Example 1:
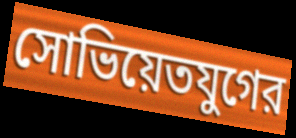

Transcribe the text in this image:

সোভিয়েতযুগের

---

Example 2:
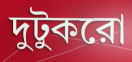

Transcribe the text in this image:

দুটুকরো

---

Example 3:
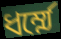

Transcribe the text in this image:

ধর্ম্মে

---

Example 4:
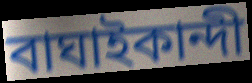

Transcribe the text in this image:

বাঘাইকান্দী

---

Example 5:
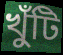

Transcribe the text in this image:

খুঁটি